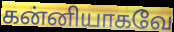
கன்னியாகவே